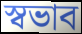
স্বভাব